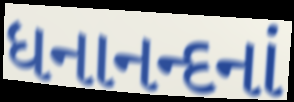
ધનાનન્દનાં